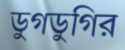
ডুগডুগির